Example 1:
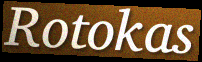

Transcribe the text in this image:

Rotokas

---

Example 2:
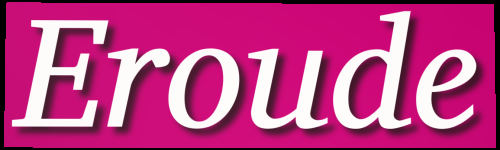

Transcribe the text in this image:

Eroude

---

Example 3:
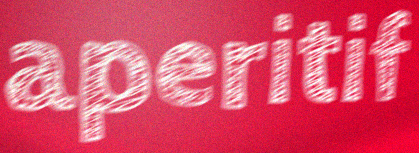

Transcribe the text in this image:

aperitif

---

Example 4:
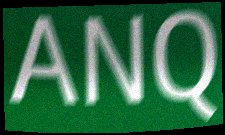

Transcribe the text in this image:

ANQ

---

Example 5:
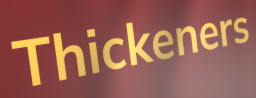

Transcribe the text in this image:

Thickeners